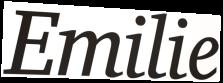
Emilie